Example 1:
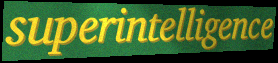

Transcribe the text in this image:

superintelligence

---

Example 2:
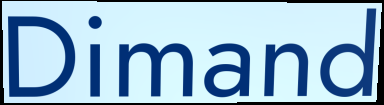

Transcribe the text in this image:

Dimand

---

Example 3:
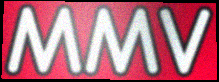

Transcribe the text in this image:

MMV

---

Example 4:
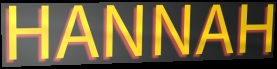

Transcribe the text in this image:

HANNAH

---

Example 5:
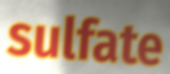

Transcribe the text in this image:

sulfate